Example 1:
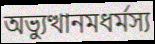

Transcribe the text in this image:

অভ্যুত্থানমধর্মস্য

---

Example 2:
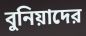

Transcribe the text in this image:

বুনিয়াদের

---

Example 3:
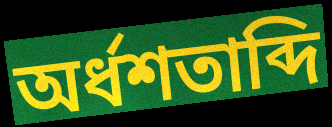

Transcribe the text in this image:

অর্ধশতাব্দি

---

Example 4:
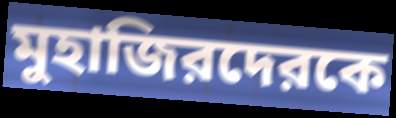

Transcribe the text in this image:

মুহাজিরদেরকে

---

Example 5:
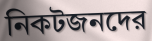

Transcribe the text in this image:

নিকটজনদের